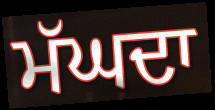
ਮੱਘਦਾ